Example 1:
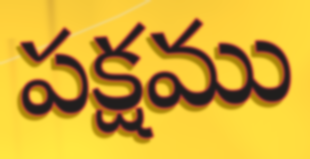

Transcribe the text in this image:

పక్షము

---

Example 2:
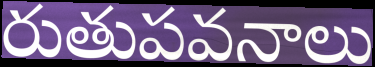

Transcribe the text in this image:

రుతుపవనాలు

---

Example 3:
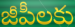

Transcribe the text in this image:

జీపీలకు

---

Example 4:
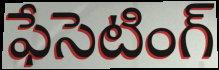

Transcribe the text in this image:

ఫేసెటింగ్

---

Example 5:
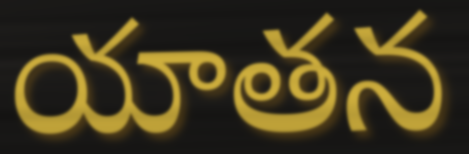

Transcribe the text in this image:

యాతన